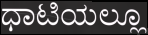
ಧಾಟಿಯಲ್ಲೂ